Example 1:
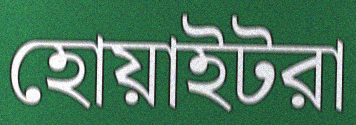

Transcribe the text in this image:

হোয়াইটরা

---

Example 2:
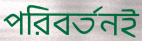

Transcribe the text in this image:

পরিবর্তনই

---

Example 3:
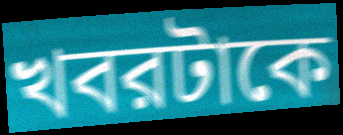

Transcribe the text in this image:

খবরটাকে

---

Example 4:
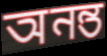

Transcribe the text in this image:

অনন্ত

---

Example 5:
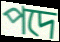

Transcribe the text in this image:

পদে